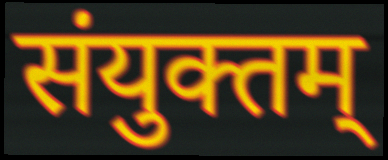
संयुक्तम्